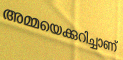
അമ്മയെക്കുറിച്ചാണ്